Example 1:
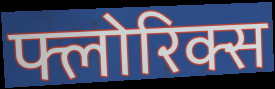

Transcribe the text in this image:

फ्लोरिक्स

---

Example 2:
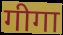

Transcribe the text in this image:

गीगा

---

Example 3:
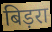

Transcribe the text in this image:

बिड़रा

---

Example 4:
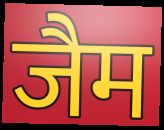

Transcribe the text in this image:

जैम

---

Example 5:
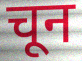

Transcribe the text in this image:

चून